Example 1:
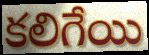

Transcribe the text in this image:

కలిగేయి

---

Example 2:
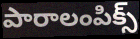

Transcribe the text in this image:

పారాలంపిక్స్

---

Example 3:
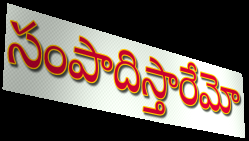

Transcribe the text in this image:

సంపాదిస్తారేమో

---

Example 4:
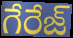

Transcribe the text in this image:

గేరేజ్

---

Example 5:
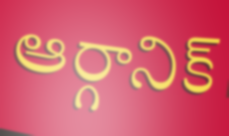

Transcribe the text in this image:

ఆర్గానిక్